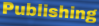
Publishing